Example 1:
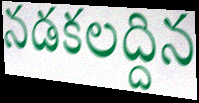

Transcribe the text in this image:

నడకలద్దిన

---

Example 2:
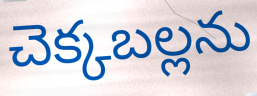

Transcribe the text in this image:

చెక్కబల్లను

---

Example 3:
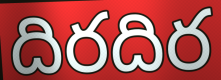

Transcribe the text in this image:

దిరదిర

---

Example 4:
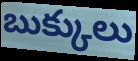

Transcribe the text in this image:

బుక్కులు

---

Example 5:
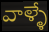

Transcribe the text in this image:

వాళ్ళే